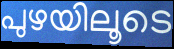
പുഴയിലൂടെ